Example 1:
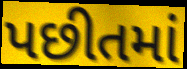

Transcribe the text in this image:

પછીતમાં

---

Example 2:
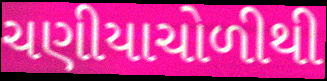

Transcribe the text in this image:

ચણીયાચોળીથી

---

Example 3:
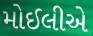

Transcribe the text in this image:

મોઈલીએ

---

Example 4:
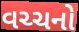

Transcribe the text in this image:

વચ્ચનો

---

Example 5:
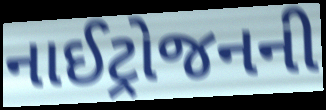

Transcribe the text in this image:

નાઈટ્રોજનની